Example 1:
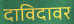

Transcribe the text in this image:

दाविदावर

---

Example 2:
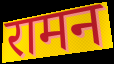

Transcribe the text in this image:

रामन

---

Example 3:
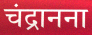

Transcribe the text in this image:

चंद्रानना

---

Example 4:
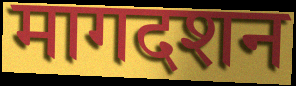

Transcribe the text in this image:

मागदशन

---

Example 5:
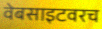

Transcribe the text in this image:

वेबसाइटवरच